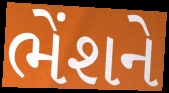
ભેંશને